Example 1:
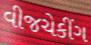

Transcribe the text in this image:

વીજચેકીંગ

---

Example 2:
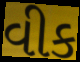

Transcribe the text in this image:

વીક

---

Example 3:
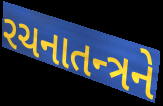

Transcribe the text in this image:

રચનાતન્ત્રને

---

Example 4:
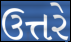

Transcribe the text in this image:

ઉત્તરે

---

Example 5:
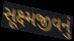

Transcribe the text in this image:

સૂક્ષ્મજીવનું